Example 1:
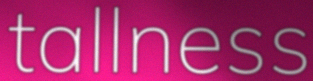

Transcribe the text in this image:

tallness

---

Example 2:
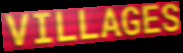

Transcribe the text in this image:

VILLAGES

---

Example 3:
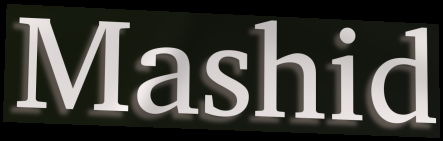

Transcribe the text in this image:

Mashid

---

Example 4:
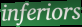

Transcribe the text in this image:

inferiors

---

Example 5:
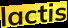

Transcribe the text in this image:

lactis